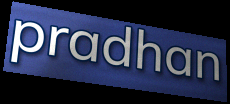
pradhan